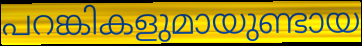
പറങ്കികളുമായുണ്ടായ